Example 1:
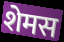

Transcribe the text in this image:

शेमस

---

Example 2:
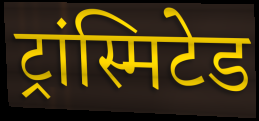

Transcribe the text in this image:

ट्रांस्मिटेड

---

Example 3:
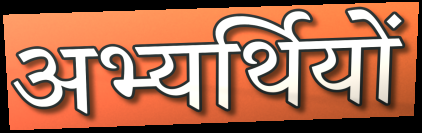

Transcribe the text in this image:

अभ्यर्थियों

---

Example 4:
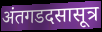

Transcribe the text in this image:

अंतगडदसासूत्र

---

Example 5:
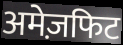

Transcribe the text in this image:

अमेज़फिट